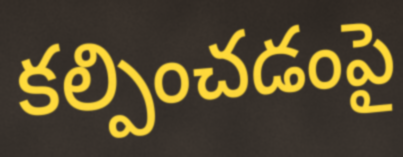
కల్పించడంపై